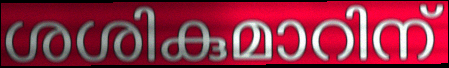
ശശികുമാറിന്